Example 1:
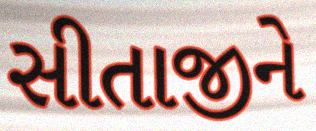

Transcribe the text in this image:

સીતાજીને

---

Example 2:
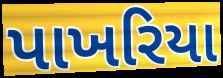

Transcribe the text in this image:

પાખરિયા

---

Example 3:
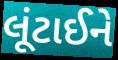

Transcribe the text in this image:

લૂંટાઈને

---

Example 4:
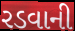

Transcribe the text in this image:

રડવાની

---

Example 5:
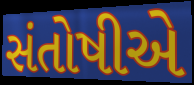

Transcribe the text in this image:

સંતોષીએ